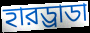
হারড্রাডা